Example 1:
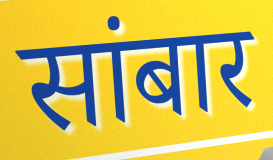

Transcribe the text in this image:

सांबार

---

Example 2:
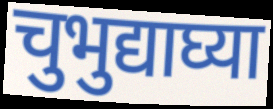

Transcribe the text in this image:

चुभुद्याघ्या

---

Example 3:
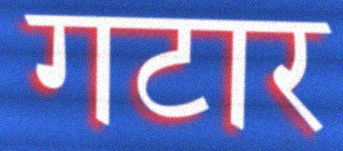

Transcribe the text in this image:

गटार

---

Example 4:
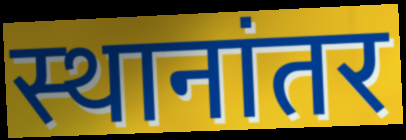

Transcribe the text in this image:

स्थानांतर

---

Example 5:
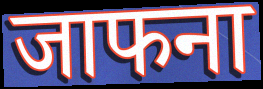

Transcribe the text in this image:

जाफना